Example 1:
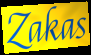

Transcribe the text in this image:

Zakas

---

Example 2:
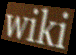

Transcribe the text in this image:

wiki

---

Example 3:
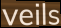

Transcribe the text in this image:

veils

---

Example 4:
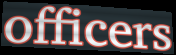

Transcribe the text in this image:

officers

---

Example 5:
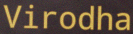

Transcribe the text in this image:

Virodha